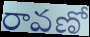
రావణో